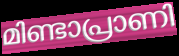
മിണ്ടാപ്രാണി